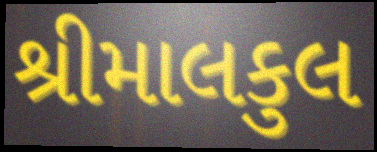
શ્રીમાલકુલ